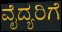
ವೈದ್ಯರಿಗೆ